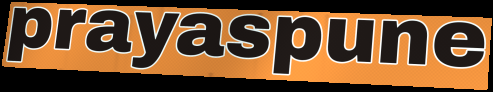
prayaspune